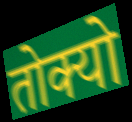
तोक्‍यो